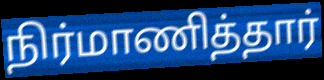
நிர்மாணித்தார்